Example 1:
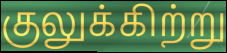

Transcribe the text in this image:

குலுக்கிற்று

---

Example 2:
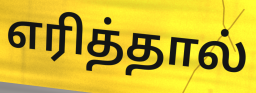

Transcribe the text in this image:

எரித்தால்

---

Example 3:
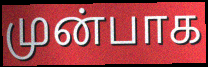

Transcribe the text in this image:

முன்பாக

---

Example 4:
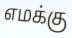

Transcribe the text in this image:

எமக்கு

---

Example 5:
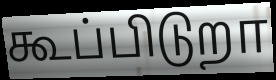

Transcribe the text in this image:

கூப்பிடுறா